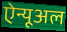
ऐन्यूअल